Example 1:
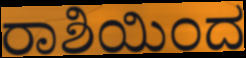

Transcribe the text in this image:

ರಾಶಿಯಿಂದ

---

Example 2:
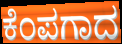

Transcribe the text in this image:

ಕೆಂಪಗಾದ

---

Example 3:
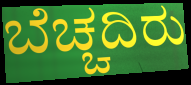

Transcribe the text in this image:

ಬೆಚ್ಚದಿರು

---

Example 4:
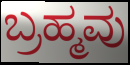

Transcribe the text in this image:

ಬ್ರಹ್ಮವು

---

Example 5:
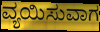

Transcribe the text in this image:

ವ್ಯಯಿಸುವಾಗ